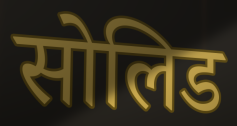
सोलिड